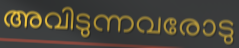
അവിടുന്നവരോടു